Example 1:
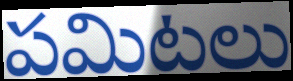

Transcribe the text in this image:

పమిటలు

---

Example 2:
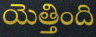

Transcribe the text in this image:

యెత్తింది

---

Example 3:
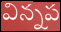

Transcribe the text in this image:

విన్నప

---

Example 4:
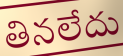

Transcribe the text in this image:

తినలేదు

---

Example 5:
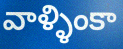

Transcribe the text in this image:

వాళ్ళింకా